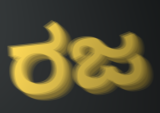
ರಜ